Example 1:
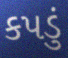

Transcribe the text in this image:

કપડું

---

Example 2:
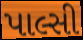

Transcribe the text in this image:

પાલ્સી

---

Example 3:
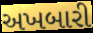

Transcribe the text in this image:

અખબારી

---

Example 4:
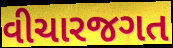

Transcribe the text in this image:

વીચારજગત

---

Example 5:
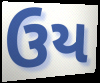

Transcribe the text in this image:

ઉય